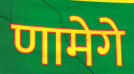
णामेगे